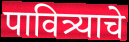
पावित्र्याचे